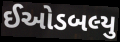
ઈઓડબલ્યુ